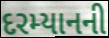
દરમ્યાનની